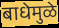
बाधेमुळे